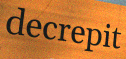
decrepit